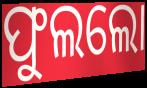
ଫୁଲଲୋ